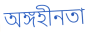
অঙ্গহীনতা